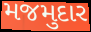
મજમુદાર